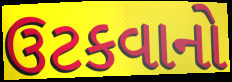
ઉટકવાનો